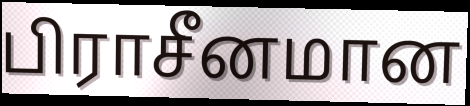
பிராசீனமான